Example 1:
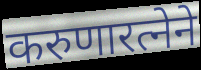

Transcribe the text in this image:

करुणारत्नेने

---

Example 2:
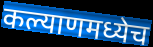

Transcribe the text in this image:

कल्याणमध्येच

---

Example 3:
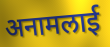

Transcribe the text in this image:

अनामलाई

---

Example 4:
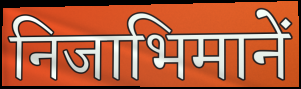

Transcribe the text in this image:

निजाभिमानें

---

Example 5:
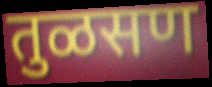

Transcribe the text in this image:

तुळसण